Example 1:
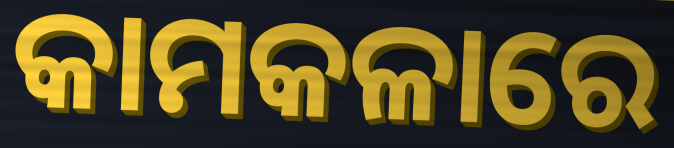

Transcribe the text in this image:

କାମକଳାରେ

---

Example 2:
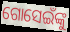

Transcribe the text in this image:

ଗୋସେଇଁଙ୍କୁ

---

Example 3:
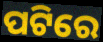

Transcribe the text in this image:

ପଟିରେ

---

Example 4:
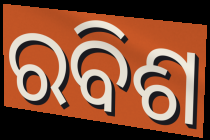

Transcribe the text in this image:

ରବିଶ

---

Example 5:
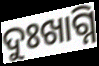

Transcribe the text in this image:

ଦୁଃଖାଗ୍ନି